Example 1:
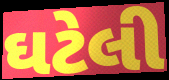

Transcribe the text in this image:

ઘટેલી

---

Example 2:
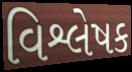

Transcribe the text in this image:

વિશ્લેષક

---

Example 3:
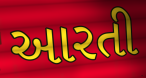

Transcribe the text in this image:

આરતી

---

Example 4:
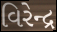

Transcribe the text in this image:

વિરેન્દ્ર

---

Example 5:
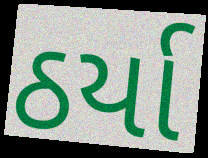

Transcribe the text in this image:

ઠર્યા